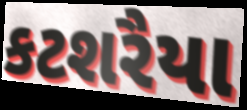
કટશરૈયા